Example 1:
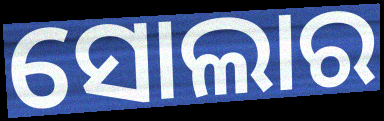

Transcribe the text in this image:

ସୋଲାର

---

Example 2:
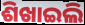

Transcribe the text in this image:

ଶିଖାଇଲି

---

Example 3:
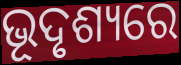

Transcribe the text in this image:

ଭୂଦୃଶ୍ୟରେ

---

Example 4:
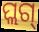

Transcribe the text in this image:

ପ୍ଲଗ୍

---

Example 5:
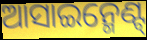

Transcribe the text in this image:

ଆସାଇନ୍ମେଣ୍ଟ୍